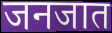
जनजात